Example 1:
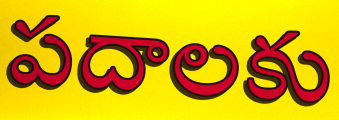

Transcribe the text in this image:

పదాలకు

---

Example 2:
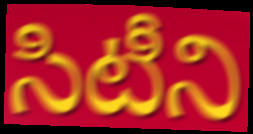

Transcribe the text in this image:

సిటీని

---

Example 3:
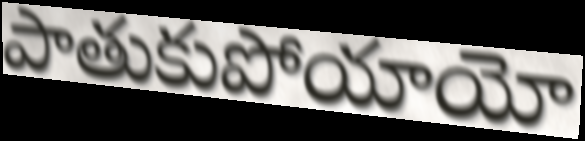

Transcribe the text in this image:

పాతుకుపోయాయో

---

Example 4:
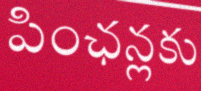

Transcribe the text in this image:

పింఛన్లకు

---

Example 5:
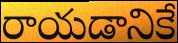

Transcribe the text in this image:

రాయడానికే